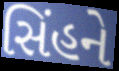
સિંહને